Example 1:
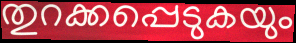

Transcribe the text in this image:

തുറക്കപ്പെടുകയും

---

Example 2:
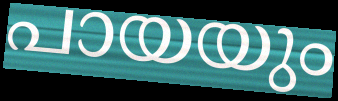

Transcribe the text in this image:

പായയും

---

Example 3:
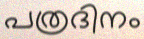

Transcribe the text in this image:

പത്രദിനം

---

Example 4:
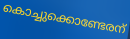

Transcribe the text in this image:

കൊച്ചുക്കൊണ്ടേരന്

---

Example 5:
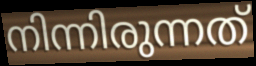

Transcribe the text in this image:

നിന്നിരുന്നത്